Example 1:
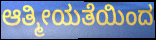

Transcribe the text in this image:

ಆತ್ಮೀಯತೆಯಿಂದ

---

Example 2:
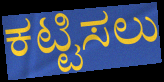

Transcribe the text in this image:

ಕಟ್ಟಿಸಲು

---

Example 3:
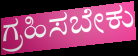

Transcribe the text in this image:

ಗ್ರಹಿಸಬೇಕು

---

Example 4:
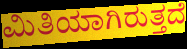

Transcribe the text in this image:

ಮಿತಿಯಾಗಿರುತ್ತದೆ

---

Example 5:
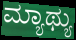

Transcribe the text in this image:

ಮ್ಯಾಥ್ಯು